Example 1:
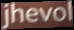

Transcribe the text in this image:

jhevol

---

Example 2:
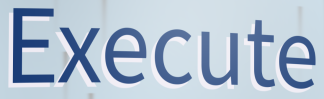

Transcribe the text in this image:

Execute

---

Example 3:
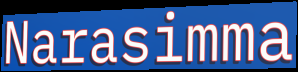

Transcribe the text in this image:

Narasimma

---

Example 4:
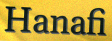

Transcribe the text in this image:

Hanafi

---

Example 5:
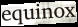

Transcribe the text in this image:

equinox